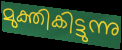
മുക്തികിട്ടുന്നു